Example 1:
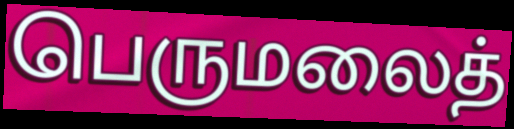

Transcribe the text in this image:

பெருமலைத்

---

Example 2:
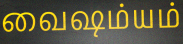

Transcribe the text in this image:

வைஷம்யம்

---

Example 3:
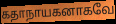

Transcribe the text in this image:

கதாநாயகனாகவே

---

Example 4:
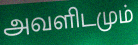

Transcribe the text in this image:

அவளிடமும்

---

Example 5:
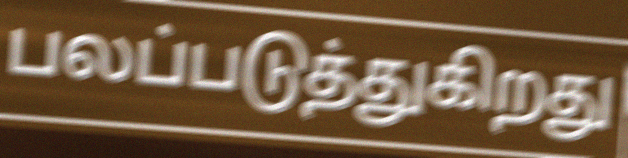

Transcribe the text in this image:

பலப்படுத்துகிறது